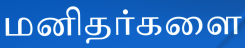
மனிதர்களை